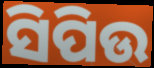
ସିପିଉ